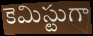
కెమిస్టుగా